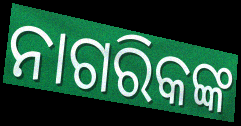
ନାଗରିକଙ୍କ